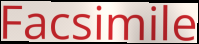
Facsimile